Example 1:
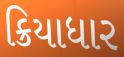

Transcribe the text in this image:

ક્રિયાધાર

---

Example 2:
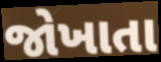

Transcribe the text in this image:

જોખાતા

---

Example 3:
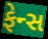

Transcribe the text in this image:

ફેન્સ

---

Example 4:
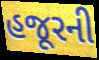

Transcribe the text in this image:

હજૂરની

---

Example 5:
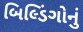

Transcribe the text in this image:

બિલ્ડિંગોનું